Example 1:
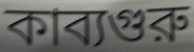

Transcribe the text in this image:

কাব্যগুরু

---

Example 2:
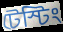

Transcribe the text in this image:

টেস্টিং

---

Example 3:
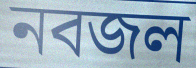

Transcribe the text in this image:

নবজল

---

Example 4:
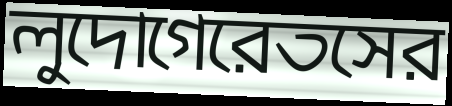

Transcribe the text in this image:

লুদোগেরেতসের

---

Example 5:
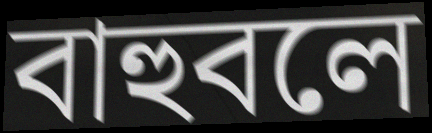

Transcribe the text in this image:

বাহুবলে